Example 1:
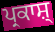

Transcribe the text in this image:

ਪ੍ਰਕਾਸ਼੍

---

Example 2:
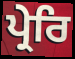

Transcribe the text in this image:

ਪ੍ਰੇਰਿ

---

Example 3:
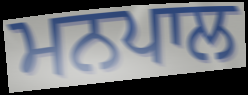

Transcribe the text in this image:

ਮਨਪਾਲ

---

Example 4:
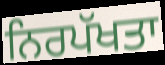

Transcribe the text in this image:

ਨਿਰਪੱਖਤਾ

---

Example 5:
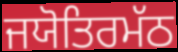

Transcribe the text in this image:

ਜਯੋਤਿਰਮੱਠ